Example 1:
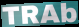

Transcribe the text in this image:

TRAb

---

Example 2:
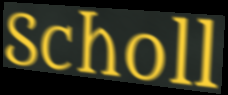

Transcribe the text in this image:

Scholl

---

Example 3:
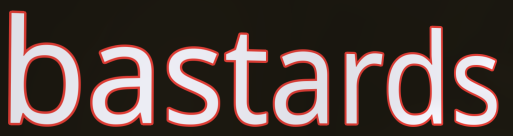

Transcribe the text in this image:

bastards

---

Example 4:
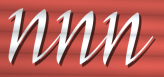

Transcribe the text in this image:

nnn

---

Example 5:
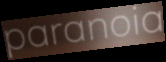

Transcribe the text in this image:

paranoia